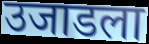
उजाडला